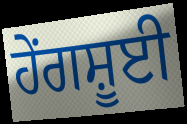
ਹੇਂਗਸ਼ੂਈ